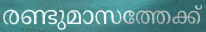
രണ്ടുമാസത്തേക്ക്